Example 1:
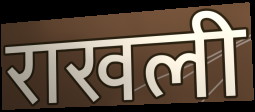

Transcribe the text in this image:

राखली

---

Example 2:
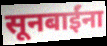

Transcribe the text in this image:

सूनबाईंना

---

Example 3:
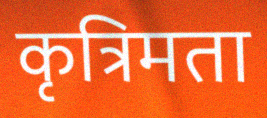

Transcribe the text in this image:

कृत्रिमता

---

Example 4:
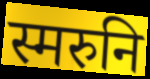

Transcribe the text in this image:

स्मरुनि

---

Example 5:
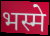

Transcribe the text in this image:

भस्मे